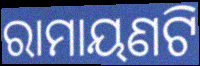
ରାମାୟଣଟି